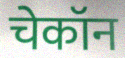
चेकॉन